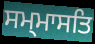
ਸਮ੍ਮਾਸਤਿ